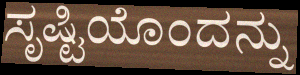
ಸೃಷ್ಟಿಯೊಂದನ್ನು